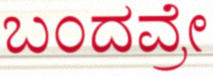
ಬಂದವ್ರೇ